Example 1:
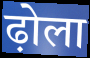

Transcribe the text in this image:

ढ़ोला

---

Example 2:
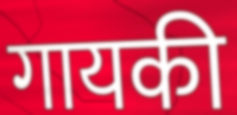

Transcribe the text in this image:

गायकी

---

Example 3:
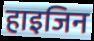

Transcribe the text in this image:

हाइजिन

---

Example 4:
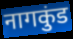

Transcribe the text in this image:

नागकुंड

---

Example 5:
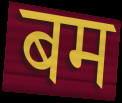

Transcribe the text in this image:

बम